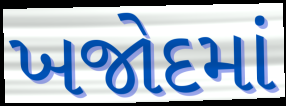
ખજોદમાં